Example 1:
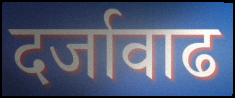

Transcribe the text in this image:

दर्जावाढ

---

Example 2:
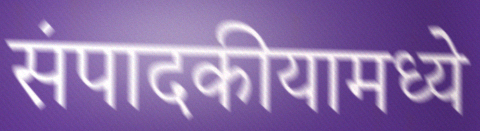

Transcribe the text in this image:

संपादकीयामध्ये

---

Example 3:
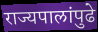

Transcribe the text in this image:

राज्यपालांपुढे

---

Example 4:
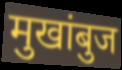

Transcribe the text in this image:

मुखांबुज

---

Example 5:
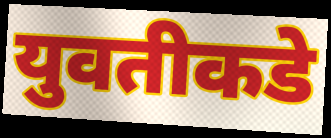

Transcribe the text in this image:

युवतीकडे